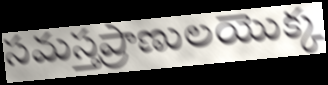
సమస్తప్రాణులయొక్క